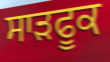
ਸਾੜਫੂਕ